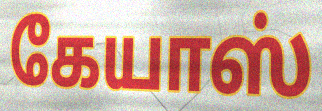
கேயாஸ்